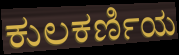
ಕುಲಕರ್ಣಿಯ